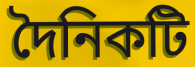
দৈনিকটি